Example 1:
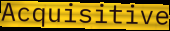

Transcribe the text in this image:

Acquisitive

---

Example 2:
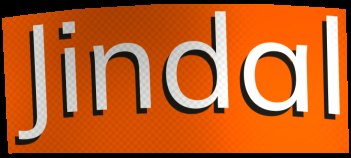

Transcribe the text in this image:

Jindal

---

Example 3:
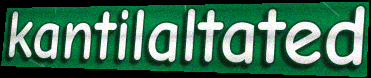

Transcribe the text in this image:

kantilaltated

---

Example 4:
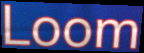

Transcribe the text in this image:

Loom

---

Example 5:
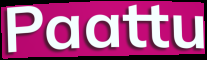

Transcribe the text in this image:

Paattu